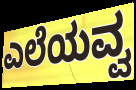
ಎಲೆಯವ್ವ